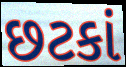
છટકાં